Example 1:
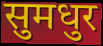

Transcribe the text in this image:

सुमधुर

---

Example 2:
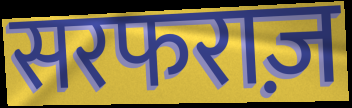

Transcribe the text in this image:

सरफराज़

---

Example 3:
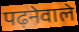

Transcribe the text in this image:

पढ़नेवाले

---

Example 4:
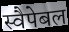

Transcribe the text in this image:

स्वैपेबल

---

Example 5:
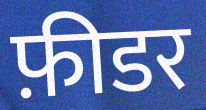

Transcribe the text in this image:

फ़ीडर